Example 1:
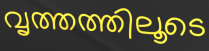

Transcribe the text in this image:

വൃത്തത്തിലൂടെ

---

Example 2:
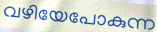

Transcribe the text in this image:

വഴിയേപോകുന്ന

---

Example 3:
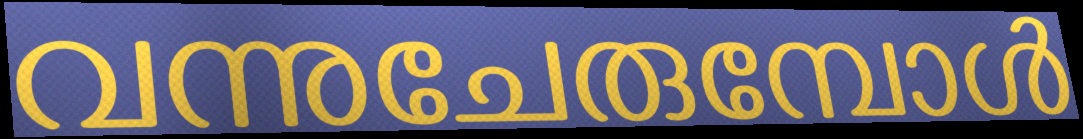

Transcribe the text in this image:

വന്നുചേരുമ്പോൾ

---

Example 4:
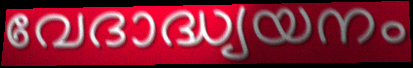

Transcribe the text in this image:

വേദാദ്ധ്യയനം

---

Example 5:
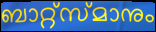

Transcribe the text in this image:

ബാറ്റ്സ്മാനും